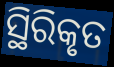
ସ୍ଥିରିକୃତ